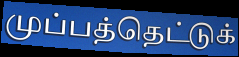
முப்பத்தெட்டுக்